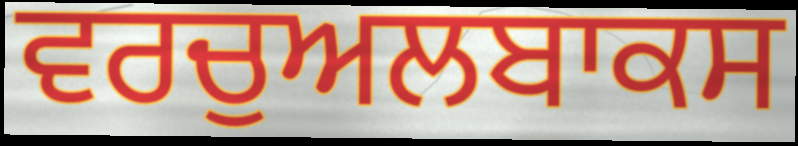
ਵਰਚੁਅਲਬਾਕਸ